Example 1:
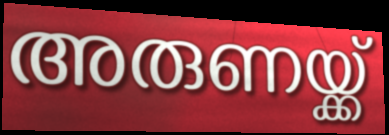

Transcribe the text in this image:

അരുണയ്ക്ക്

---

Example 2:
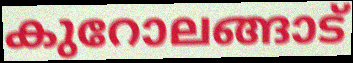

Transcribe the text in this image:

കുറോലങ്ങാട്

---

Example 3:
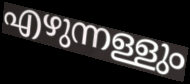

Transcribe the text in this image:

എഴുന്നള്ളും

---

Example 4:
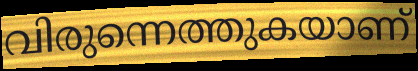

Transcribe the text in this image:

വിരുന്നെത്തുകയാണ്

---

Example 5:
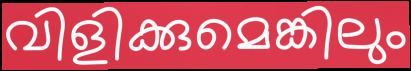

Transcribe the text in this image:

വിളിക്കുമെങ്കിലും